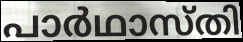
പാർഥാസ്തി